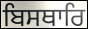
ਬਿਸਥਾਰਿ